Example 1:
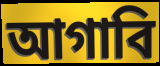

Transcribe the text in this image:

আগাবি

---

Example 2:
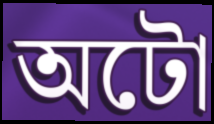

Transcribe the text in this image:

অটো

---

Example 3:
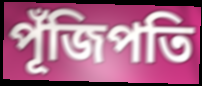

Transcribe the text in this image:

পূঁজিপতি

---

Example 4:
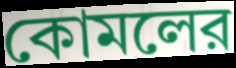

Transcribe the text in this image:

কোমলের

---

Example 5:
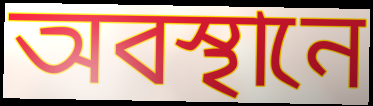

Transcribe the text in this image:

অবস্থানে